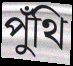
পুঁথি